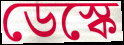
ডেস্কে